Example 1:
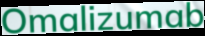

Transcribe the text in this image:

Omalizumab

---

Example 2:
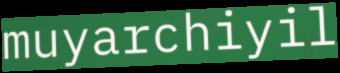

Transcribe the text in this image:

muyarchiyil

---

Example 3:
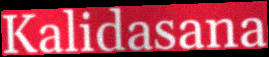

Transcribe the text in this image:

Kalidasana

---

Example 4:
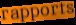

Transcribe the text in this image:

rapports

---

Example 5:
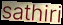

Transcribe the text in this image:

sathiri